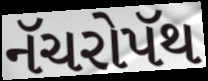
નૅચરોપૅથ